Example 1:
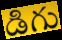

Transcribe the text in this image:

డిగు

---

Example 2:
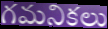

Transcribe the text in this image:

గమనికలు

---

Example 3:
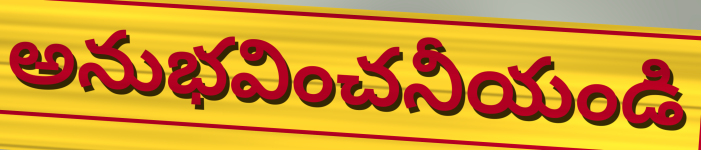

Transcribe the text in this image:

అనుభవించనీయండి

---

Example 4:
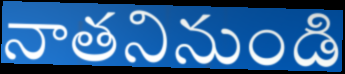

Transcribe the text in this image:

నాతనినుండి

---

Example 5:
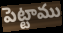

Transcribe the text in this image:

పెట్టాము